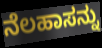
ನೆಲಹಾಸನ್ನು